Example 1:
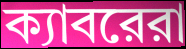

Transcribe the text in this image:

ক্যাবরেরা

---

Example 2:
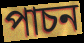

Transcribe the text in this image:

পাচন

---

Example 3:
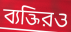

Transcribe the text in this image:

ব্যক্তিরও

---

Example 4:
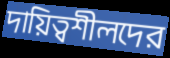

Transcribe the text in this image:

দায়িত্বশীলদের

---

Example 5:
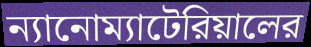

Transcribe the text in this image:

ন্যানোম্যাটেরিয়ালের